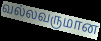
வல்லவருமான